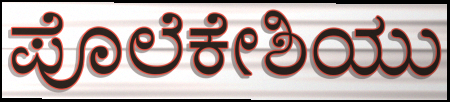
ಪೊಲೆಕೇಶಿಯು